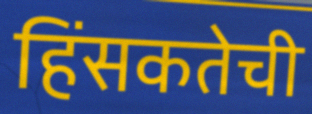
हिंसकतेची